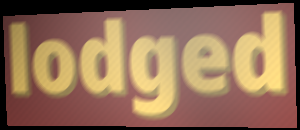
lodged